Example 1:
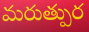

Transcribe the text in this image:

మరుత్పుర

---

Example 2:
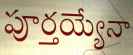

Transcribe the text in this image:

పూర్తయ్యేనా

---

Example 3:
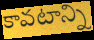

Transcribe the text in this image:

కావటాన్ని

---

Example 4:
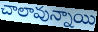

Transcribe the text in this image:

చాలావున్నాయి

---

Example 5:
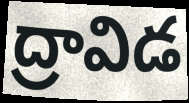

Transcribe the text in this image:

ద్రావిడ